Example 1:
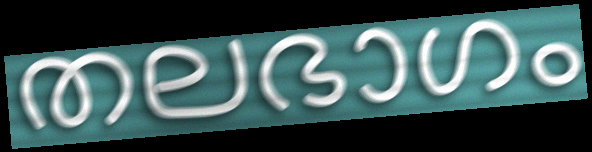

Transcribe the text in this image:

തലഭാഗം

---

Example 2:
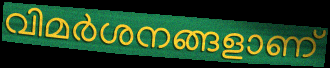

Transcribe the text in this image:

വിമർശനങ്ങളാണ്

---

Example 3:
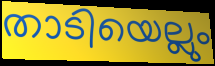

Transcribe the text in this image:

താടിയെല്ലും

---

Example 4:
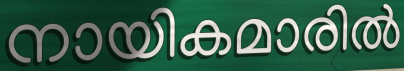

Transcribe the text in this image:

നായികമാരിൽ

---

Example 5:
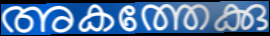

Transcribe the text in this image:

അകത്തേക്കു